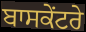
ਬਾਸਕੇਂਟਰੇ